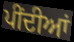
ਪੀਂਦੀਆਂ